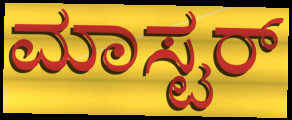
ಮಾಸ್ಟರ್